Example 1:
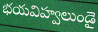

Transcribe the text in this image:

భయవిహ్వలుండై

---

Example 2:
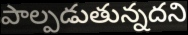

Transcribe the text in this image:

పాల్పడుతున్నదని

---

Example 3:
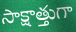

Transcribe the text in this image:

సాక్షాత్తుగా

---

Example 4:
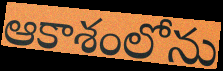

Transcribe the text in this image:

ఆకాశంలోను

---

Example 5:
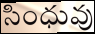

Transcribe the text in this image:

సింధువు